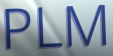
PLM